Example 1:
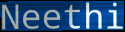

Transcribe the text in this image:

Neethi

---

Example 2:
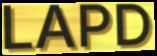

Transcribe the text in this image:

LAPD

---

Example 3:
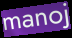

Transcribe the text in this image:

manoj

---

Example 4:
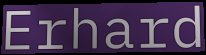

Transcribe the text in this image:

Erhard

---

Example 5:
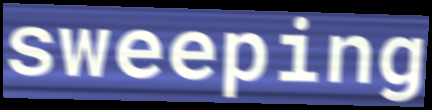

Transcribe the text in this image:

sweeping